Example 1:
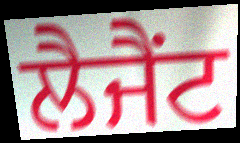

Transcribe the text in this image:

ਲੈਜੈਂਟ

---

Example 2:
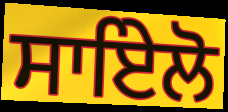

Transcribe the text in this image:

ਸਾਇੇਲੋ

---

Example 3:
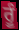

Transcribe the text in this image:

ਰੂੰ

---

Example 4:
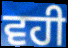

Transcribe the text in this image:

ਵਹੀ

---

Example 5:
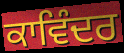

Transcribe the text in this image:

ਕਾਵਿੰਦਰ